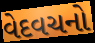
વેદવચનો